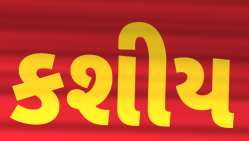
કશીય